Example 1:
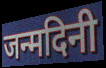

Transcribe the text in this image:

जन्मदिनी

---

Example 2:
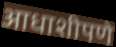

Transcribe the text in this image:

आधाशीपणे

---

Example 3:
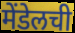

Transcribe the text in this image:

मेंडेलची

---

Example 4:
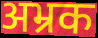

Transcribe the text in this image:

अभ्रक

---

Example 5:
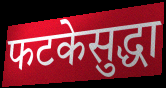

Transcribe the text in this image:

फटकेसुद्धा